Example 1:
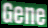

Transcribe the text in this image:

Gene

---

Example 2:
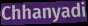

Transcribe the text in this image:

Chhanyadi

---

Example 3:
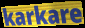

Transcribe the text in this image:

karkare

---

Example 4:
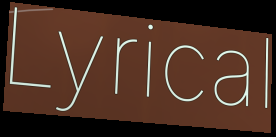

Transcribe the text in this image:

Lyrical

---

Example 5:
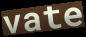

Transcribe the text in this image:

vate